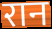
रान